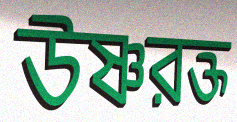
উষ্ণরক্ত